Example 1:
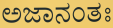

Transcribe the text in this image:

ಅಜಾನಂತಃ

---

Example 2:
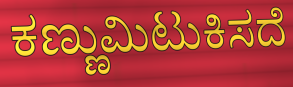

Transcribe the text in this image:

ಕಣ್ಣುಮಿಟುಕಿಸದೆ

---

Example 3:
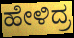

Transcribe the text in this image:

ಹೇಳಿದ್ರ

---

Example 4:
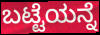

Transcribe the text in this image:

ಬಟ್ಟೆಯನ್ನೆ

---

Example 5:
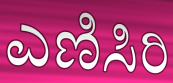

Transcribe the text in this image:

ಎಣಿಸಿರಿ